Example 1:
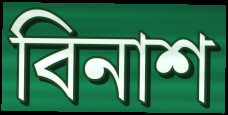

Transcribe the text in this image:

বিনাশ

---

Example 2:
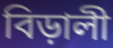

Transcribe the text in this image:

বিড়ালী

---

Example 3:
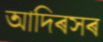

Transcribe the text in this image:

আদিৰসৰ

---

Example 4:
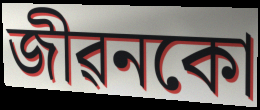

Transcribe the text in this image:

জীৱনকো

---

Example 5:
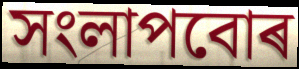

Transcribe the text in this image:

সংলাপবোৰ